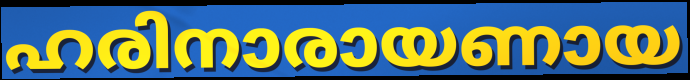
ഹരിനാരായണായ